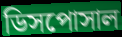
ডিসপোসাল